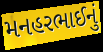
મનહરભાઈનું